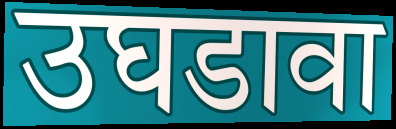
उघडावा